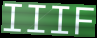
IIIF